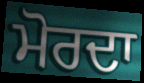
ਮੋਰਦਾ